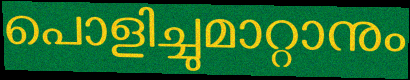
പൊളിച്ചുമാറ്റാനും